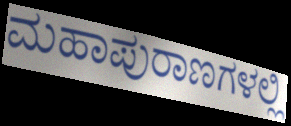
ಮಹಾಪುರಾಣಗಳಲ್ಲಿ